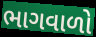
ભાગવાળો